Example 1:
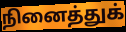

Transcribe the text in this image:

நினைத்துக்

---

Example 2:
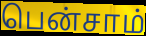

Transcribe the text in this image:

பென்சாம்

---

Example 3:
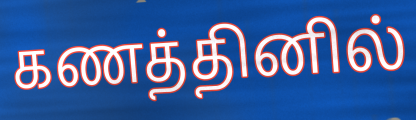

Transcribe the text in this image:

கணத்தினில்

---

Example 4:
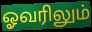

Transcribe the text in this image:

ஓவரிலும்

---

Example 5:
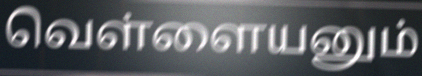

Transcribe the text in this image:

வெள்ளையனும்